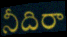
నీదిరా